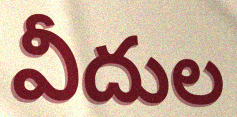
వీదుల